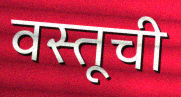
वस्तूची